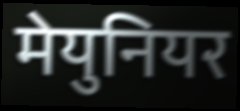
मेयुनियर